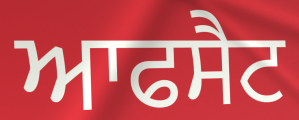
ਆਫਸੈਟ